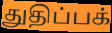
துதிப்பக்